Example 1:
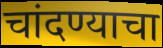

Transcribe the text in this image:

चांदण्याचा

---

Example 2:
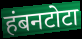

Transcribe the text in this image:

हंबनटोटा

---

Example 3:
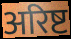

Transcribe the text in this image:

अरिष्ट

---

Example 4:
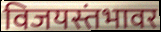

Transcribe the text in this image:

विजयस्तंभावर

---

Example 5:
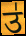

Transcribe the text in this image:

उ॑